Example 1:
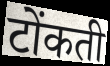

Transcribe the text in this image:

टोंकती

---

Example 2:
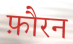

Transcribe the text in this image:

फ़ौरन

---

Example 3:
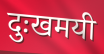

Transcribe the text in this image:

दुःखमयी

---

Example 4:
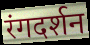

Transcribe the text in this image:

रंगदर्शन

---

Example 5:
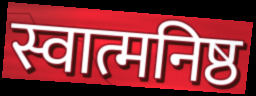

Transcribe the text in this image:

स्वात्मनिष्ठ